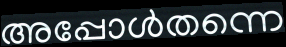
അപ്പോൾതന്നെ